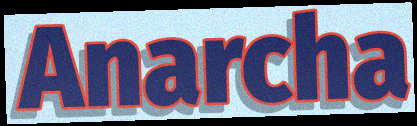
Anarcha